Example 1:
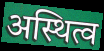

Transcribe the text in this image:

अस्थित्व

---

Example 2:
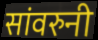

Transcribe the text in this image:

सांवरुनी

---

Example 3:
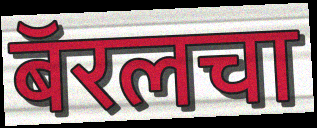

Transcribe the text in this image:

बॅरलचा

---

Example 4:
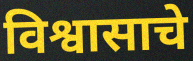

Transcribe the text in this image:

विश्वासाचे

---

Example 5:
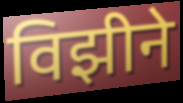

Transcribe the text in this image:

विझीने